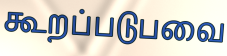
கூறப்படுபவை